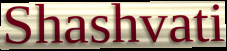
Shashvati